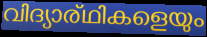
വിദ്യാര്ഥികളെയും